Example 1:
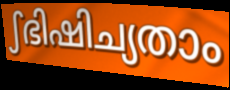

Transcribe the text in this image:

ഽഭിഷിച്യതാം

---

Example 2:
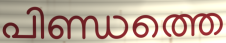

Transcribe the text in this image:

പിണ്ഡത്തെ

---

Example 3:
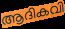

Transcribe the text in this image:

ആദികവി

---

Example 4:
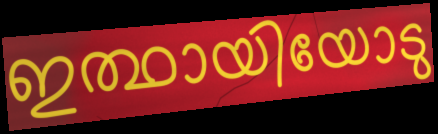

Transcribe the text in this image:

ഇത്ഥായിയോടു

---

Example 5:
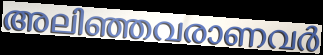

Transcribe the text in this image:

അലിഞ്ഞവരാണവർ